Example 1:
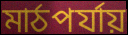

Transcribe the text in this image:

মাঠপর্যায়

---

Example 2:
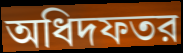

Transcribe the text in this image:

অধিদফতর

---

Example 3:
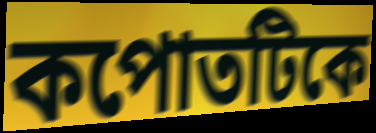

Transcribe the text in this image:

কপোতটিকে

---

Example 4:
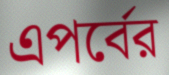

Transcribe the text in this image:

এপর্বের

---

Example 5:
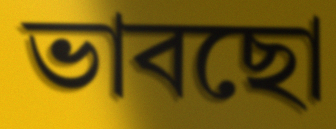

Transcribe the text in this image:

ভাবছো